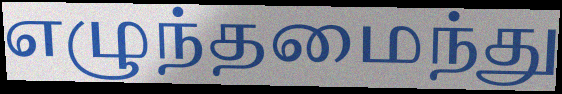
எழுந்தமைந்து